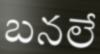
బనలే